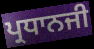
ਪ੍ਰਧਾਨਜੀ